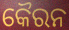
କୈରନ